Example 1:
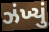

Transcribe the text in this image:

ઝંખ્યું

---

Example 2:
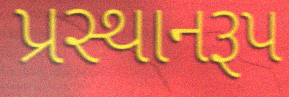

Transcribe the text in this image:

પ્રસ્થાનરૂપ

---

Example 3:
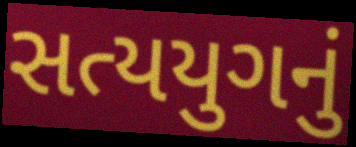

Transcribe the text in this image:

સત્યયુગનું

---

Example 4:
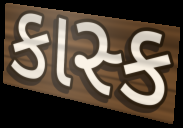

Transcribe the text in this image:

કાસ્ક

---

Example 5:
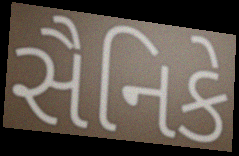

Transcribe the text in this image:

સૈનિકે